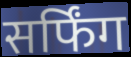
सर्फिंग